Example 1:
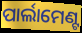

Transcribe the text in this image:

ପାର୍ଲାମେଣ୍ଟ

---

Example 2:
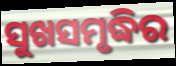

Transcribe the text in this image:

ସୁଖସମୃଦ୍ଧିର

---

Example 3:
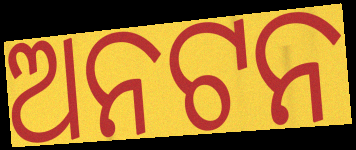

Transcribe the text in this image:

ଅନଟନ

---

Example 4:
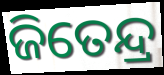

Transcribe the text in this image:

ଜିତେନ୍ଦ୍ର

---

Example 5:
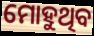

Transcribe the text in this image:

ମୋହୁଥିବ